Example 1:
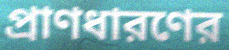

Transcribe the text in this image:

প্রাণধারণের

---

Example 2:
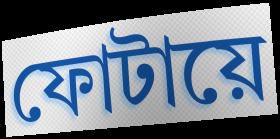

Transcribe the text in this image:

ফোটায়ে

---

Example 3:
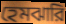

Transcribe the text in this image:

হেমঝারি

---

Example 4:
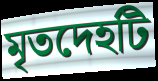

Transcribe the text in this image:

মৃতদেহটি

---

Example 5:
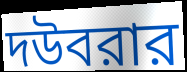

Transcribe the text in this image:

দউবরার